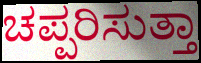
ಚಪ್ಪರಿಸುತ್ತಾ